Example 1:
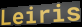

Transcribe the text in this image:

Leiris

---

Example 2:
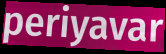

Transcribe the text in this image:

periyavar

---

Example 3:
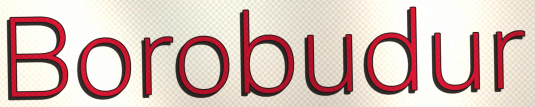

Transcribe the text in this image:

Borobudur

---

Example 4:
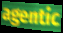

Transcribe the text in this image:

agentic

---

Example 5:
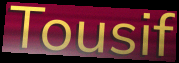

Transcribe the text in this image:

Tousif